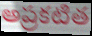
అప్రకటిత